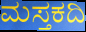
ಮಸ್ತಕದಿ